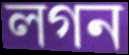
লগন